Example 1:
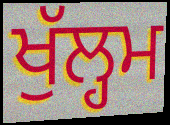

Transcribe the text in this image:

ਖੁੱਲ੍ਹਮ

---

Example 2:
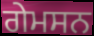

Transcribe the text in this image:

ਗੇਮਸਨ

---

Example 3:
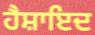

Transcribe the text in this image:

ਹੈਸ਼ਾਇਦ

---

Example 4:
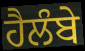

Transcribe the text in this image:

ਹੈਲੰਬੇ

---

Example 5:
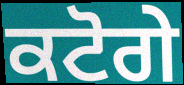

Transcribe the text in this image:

ਕਟੋਗੇ